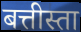
बत्तीस्ता